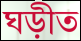
ঘড়ীত